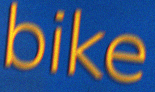
bike